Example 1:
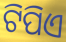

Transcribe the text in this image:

ଟିପିଏ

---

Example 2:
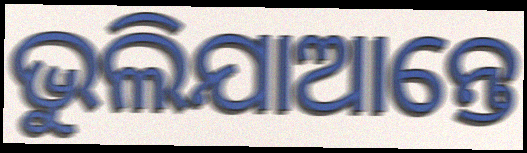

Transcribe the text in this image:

ଭୁଲିଯାଆନ୍ତେ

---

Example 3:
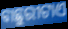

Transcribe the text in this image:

ବାଛୁରୀଟାଏ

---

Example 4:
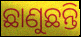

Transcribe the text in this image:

ଛାଣୁଛନ୍ତି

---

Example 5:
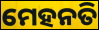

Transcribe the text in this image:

ମେହନତି